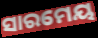
ସାରମେୟ